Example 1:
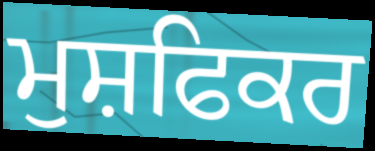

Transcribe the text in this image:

ਮੁਸ਼ਫਿਕਰ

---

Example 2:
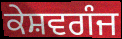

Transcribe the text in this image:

ਕੇਸ਼ਵਗੰਜ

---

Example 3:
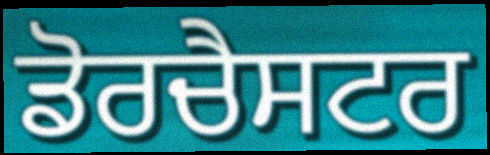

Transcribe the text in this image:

ਡੋਰਚੈਸਟਰ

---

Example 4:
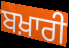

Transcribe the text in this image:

ਬਖ਼ਾਰੀ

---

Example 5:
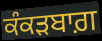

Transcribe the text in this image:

ਕੰਕੜਬਾਗ਼